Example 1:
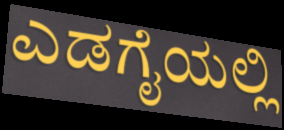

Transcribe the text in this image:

ಎಡಗೈಯಲ್ಲಿ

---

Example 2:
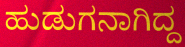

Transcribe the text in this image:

ಹುಡುಗನಾಗಿದ್ದ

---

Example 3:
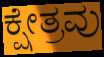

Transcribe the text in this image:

ಕ್ಷೇತ್ರವು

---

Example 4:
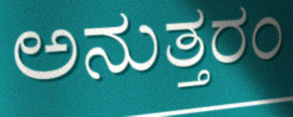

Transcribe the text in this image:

ಅನುತ್ತರಂ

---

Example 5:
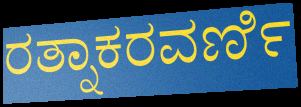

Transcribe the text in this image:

ರತ್ನಾಕರವರ್ಣಿ